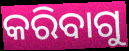
କରିବାଗୁ